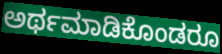
ಅರ್ಥಮಾಡಿಕೊಂಡರೂ